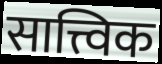
सात्त्विक